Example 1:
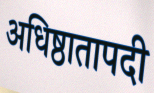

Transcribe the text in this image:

अधिष्ठातापदी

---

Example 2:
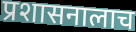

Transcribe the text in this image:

प्रशासनालाच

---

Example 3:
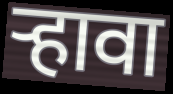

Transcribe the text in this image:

र्‍हावा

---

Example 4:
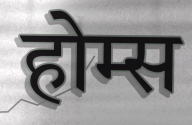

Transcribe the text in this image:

होम्स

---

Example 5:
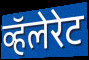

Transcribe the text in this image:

व्हॅलेरेट